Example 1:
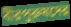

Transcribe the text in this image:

বীরপুরুষদের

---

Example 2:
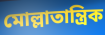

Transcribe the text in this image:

মোল্লাতান্ত্রিক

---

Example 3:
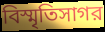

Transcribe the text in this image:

বিস্মৃতিসাগর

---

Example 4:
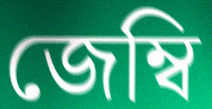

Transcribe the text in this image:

জেম্বি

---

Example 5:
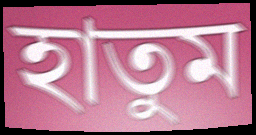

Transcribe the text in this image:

হাতুম